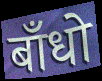
बाँधो